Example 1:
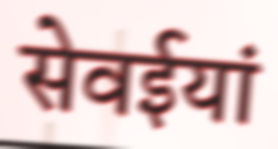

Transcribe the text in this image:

सेवईयां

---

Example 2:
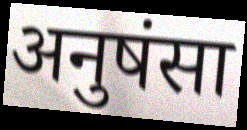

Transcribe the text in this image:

अनुषंसा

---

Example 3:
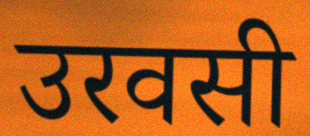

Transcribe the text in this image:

उरवसी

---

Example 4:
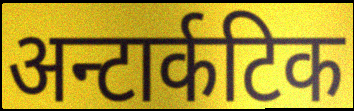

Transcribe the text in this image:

अन्टार्कटिक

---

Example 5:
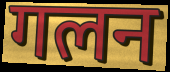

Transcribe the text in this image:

गलन